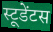
स्टूडेंटस